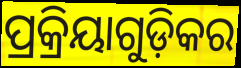
ପ୍ରକ୍ରିୟାଗୁଡ଼ିକର